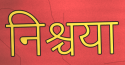
निश्चया